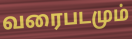
வரைபடமும்